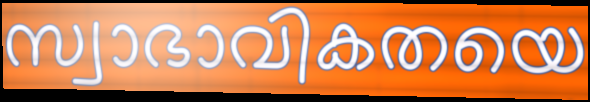
സ്വാഭാവികതയെ